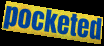
pocketed